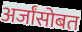
अर्जांसोबत